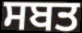
ਸਬਤ